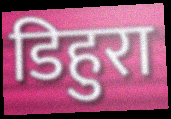
डिहुरा